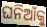
ଘନିଆଁକୁ